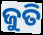
ଜୁତି